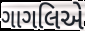
ગાગલિએ